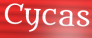
Cycas